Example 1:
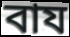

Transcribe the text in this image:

বায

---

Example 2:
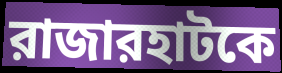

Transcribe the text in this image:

রাজারহাটকে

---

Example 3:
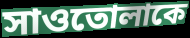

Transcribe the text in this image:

সাওতোলাকে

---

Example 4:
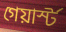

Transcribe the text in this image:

গেয়ার্স্ট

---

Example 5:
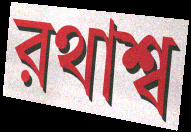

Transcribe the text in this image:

রথাশ্ব